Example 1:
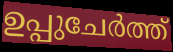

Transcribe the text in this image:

ഉപ്പുചേർത്ത്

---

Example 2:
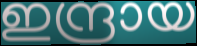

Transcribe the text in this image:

ഇന്ദ്രായ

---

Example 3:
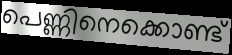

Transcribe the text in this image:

പെണ്ണിനെക്കൊണ്ട്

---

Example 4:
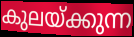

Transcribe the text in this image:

കുലയ്ക്കുന്ന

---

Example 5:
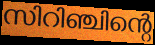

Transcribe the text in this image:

സിറിഞ്ചിന്റെ